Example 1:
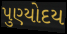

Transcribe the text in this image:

પુણ્યોદય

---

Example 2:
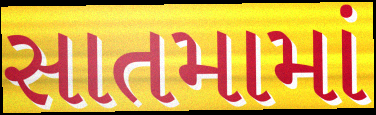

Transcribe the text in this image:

સાતમામાં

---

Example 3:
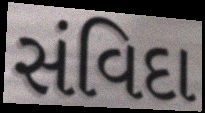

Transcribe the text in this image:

સંવિદા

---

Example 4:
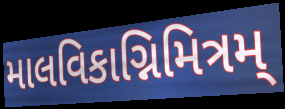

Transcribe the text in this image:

માલવિકાગ્નિમિત્રમ્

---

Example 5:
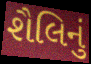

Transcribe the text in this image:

શૈલિનું